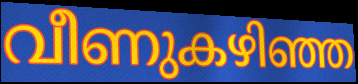
വീണുകഴിഞ്ഞ